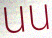
uu